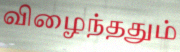
விழைந்ததும்